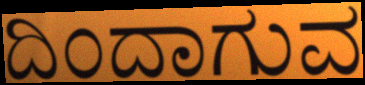
ದಿಂದಾಗುವ